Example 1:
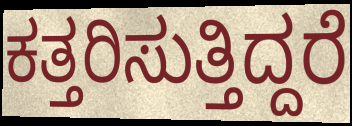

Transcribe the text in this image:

ಕತ್ತರಿಸುತ್ತಿದ್ದರೆ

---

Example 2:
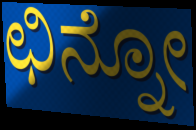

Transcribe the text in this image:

ಛಿನ್ನೋ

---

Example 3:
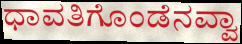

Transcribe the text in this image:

ಧಾವತಿಗೊಂಡೆನವ್ವಾ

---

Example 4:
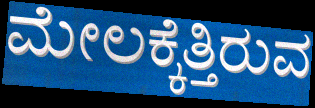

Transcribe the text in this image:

ಮೇಲಕ್ಕೆತ್ತಿರುವ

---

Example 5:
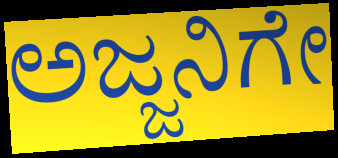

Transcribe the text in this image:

ಅಜ್ಜನಿಗೇ